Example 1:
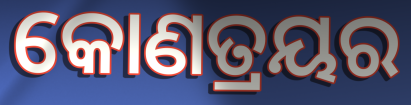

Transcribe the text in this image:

କୋଣତ୍ରୟର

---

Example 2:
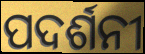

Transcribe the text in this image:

ପଦର୍ଶନୀ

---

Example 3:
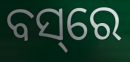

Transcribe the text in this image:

ବସ୍‌ରେ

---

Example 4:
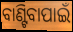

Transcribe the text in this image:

ବାଣ୍ଟିବାପାଇଁ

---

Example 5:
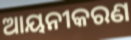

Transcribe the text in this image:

ଆୟନୀକରଣ